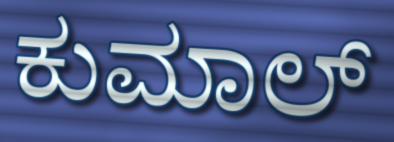
ಕುಮಾಲ್